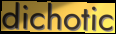
dichotic